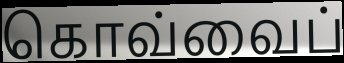
கொவ்வைப்